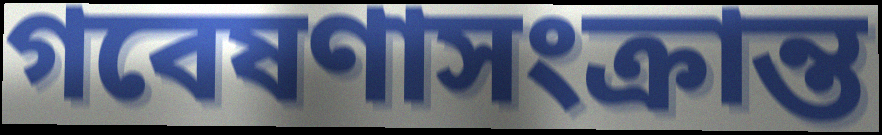
গবেষণাসংক্রান্ত